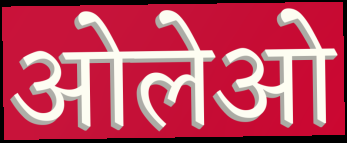
ओलेओ